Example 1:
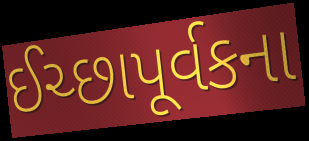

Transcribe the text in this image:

ઈચ્છાપૂર્વકના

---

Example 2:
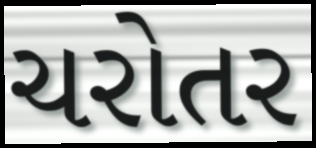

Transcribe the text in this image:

ચરોતર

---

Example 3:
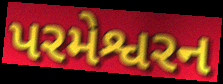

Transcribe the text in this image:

પરમેશ્વરન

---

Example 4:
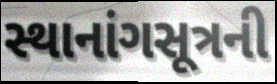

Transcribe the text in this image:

સ્થાનાંગસૂત્રની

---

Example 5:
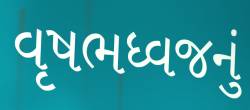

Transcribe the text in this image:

વૃષભધ્વજનું